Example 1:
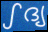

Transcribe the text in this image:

ഽദ്യ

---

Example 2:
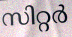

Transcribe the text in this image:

സിറ്റർ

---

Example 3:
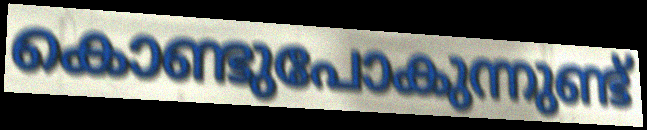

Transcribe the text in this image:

കൊണ്ടുപോകുന്നുണ്ട്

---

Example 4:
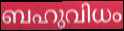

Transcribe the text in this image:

ബഹുവിധം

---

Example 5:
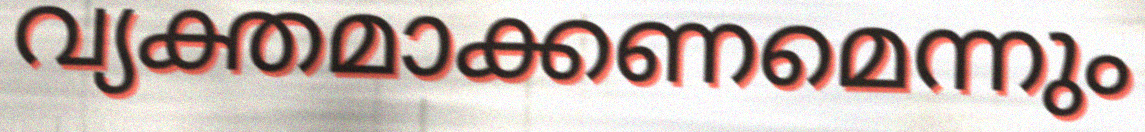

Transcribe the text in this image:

വ്യക്തമാക്കണമെന്നും